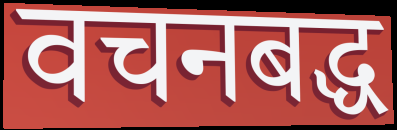
वचनबद्ध